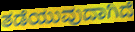
ತಡೆಯುವುದಾಗಿದೆ